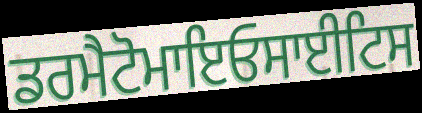
ਡਰਮੈਟੋਮਾਇਓਸਾਈਟਿਸ